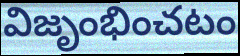
విజృంభించటం